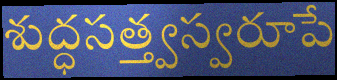
శుద్ధసత్త్వస్వరూపే